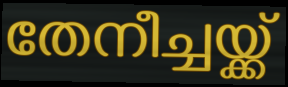
തേനീച്ചയ്ക്ക്